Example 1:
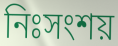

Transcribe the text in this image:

নিঃসংশয়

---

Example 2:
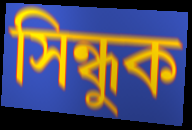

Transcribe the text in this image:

সিন্ধুক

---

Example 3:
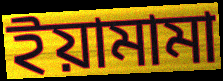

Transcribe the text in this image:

ইয়ামামা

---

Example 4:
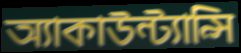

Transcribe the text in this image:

অ্যাকাউন্ট্যান্সি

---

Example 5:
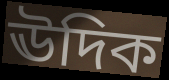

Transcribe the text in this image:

ঊদিক